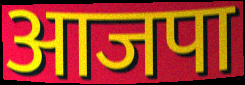
आजपा